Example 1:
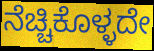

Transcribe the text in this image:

ನೆಚ್ಚಿಕೊಳ್ಳದೇ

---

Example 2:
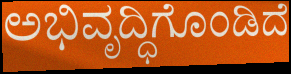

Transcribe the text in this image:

ಅಭಿವೃದ್ಧಿಗೊಂಡಿದೆ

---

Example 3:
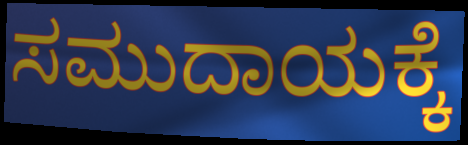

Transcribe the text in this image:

ಸಮುದಾಯಕ್ಕೆ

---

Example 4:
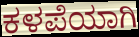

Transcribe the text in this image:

ಕಳಪೆಯಾಗಿ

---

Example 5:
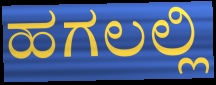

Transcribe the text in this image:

ಹಗಲಲ್ಲಿ